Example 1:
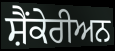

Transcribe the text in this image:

ਸ਼ੈਂਕੇਰੀਅਨ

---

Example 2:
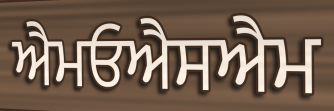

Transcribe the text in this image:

ਐਮਓਐਸਐਮ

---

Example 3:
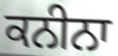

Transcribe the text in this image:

ਕਨੀਨਾ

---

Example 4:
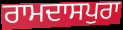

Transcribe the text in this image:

ਰਾਮਦਾਸਪੁਰਾ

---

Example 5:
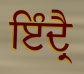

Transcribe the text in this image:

ਇੰਦ੍ਰੈ